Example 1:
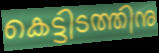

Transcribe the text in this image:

കെട്ടിടത്തിനു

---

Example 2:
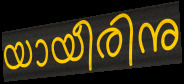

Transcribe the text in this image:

യായീരിനു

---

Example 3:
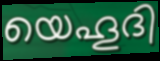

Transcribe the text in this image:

യെഹൂദി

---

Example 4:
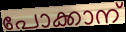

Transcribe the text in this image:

പോക്കാന്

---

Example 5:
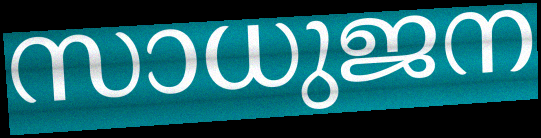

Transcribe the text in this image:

സാധുജന